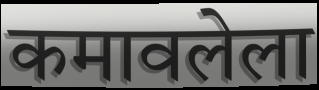
कमावलेला